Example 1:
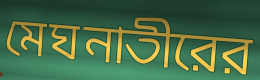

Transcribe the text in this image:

মেঘনাতীরের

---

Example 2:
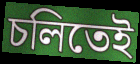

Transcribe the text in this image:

চলিতেই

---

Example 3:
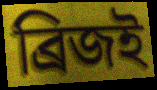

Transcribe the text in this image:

ব্রিজই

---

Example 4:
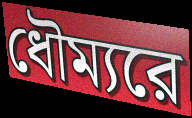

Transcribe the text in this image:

ধৌম্যরে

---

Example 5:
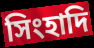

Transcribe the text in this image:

সিংহাদি